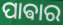
ପାଵାର